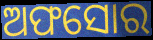
ଅଫସୋର